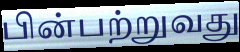
பின்பற்றுவது